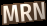
MRN